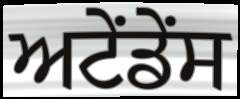
ਅਟੇਂਡੇਂਸ